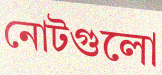
নোটগুলো